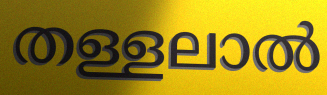
തള്ളലാൽ